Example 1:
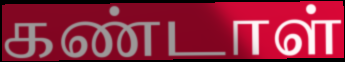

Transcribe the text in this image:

கண்டாள்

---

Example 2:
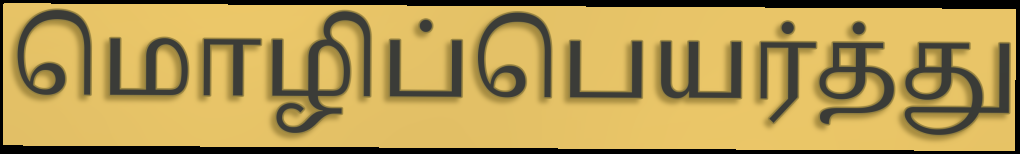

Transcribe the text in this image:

மொழிப்பெயர்த்து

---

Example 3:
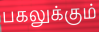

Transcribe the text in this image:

பகலுக்கும்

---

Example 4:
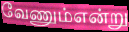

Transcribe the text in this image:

வேணும்என்று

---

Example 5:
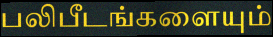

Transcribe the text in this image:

பலிபீடங்களையும்